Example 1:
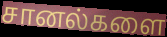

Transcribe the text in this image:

சானல்களை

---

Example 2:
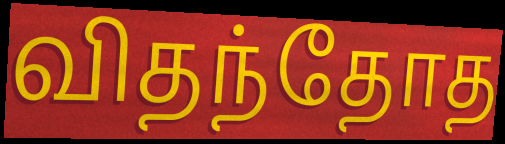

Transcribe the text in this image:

விதந்தோத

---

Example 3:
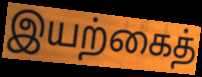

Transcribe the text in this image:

இயற்கைத்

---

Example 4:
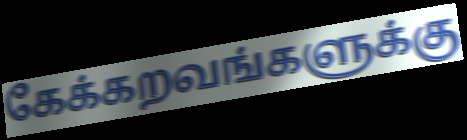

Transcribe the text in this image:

கேக்கறவங்களுக்கு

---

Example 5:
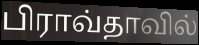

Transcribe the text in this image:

பிராவ்தாவில்